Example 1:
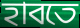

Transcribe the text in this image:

হাবতে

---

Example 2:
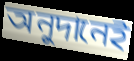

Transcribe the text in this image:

অনুদানেই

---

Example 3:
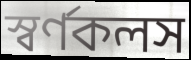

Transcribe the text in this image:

স্বর্ণকলস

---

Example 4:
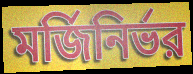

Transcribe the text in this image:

মর্জিনির্ভর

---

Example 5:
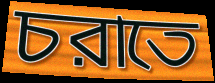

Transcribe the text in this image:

চরাতে